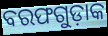
ବରଫଗୁଡ଼ାକ